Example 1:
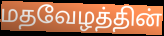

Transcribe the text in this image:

மதவேழத்தின்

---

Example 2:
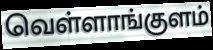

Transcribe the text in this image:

வெள்ளாங்குளம்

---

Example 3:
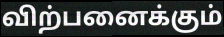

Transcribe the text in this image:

விற்பனைக்கும்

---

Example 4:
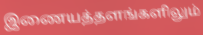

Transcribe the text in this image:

இணையத்தளங்களிலும்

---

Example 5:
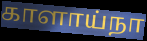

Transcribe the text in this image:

காளாய்நா